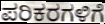
ಪರಿಕರಗಳಿಗೆ